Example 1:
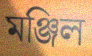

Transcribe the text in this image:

মঞ্জিল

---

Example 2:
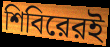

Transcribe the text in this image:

শিবিরেরই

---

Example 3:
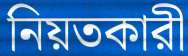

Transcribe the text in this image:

নিয়তকারী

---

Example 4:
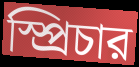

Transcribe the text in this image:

স্প্রিচার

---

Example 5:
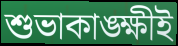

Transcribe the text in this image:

শুভাকাঙ্ক্ষীই